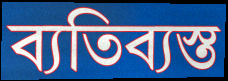
ব্যতিব্যস্ত